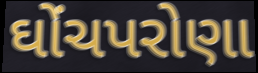
ઘોંચપરોણા